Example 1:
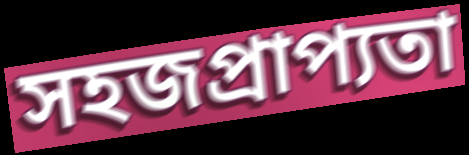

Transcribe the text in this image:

সহজপ্রাপ্যতা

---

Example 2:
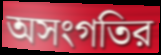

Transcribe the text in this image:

অসংগতির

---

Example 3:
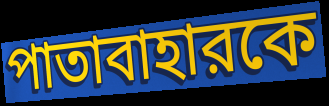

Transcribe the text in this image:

পাতাবাহারকে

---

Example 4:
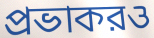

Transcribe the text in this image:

প্রভাকরও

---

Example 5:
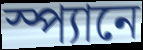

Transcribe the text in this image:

স্প্যানে